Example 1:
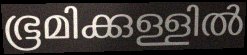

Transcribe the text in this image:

ഭൂമിക്കുള്ളിൽ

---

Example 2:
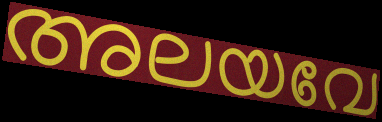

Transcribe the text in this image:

അലയവേ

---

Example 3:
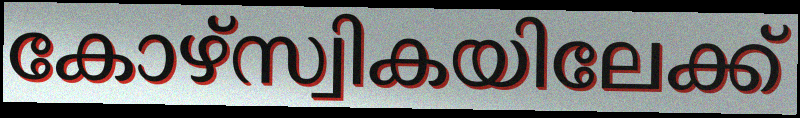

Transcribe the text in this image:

കോഴ്സ്വികയിലേക്ക്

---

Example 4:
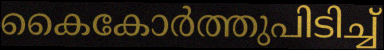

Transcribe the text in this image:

കൈകോർത്തുപിടിച്ച്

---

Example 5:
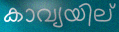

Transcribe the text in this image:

കാവ്യയില്